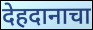
देहदानाचा